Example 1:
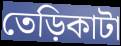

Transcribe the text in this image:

তেড়িকাটা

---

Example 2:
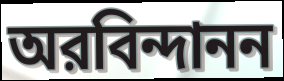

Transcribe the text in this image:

অরবিন্দানন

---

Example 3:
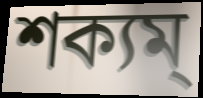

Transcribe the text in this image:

শক্যম্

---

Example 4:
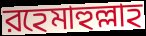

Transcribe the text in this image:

রহেমাহুল্লাহ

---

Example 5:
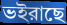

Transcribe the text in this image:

ভইরাছে